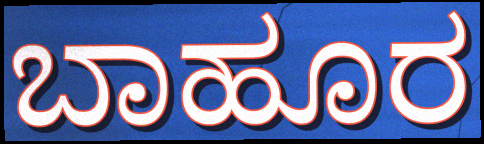
ಬಾಹೂರ